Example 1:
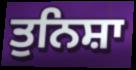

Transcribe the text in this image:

ਤੁਨਿਸ਼ਾ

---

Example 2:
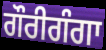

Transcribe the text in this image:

ਗੌਰੀਗੰਗਾ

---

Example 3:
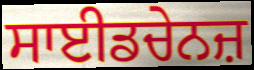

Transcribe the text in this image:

ਸਾਈਡਚੇਨਜ਼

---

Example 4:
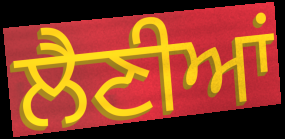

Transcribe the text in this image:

ਲੈਣੀਆਂ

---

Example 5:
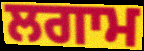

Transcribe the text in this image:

ਲਗਾਮ